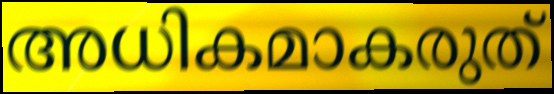
അധികമാകരുത്